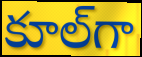
కూల్‌గా